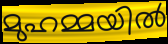
മുഹമ്മയിൽ